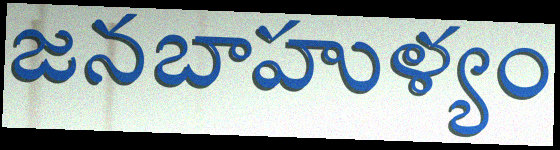
జనబాహుళ్యం